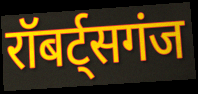
रॉबर्ट्सगंज